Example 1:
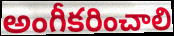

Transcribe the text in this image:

అంగీకరించాలి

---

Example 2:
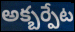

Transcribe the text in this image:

అక్బర్పేట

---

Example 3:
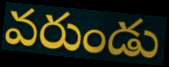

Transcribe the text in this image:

వరుండు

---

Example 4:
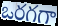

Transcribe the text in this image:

ఒరగగా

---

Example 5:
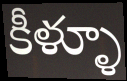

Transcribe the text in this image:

కీళ్ళూ